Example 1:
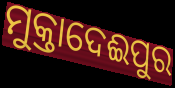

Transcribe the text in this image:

ମୁକ୍ତାଦେଈପୁର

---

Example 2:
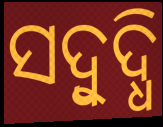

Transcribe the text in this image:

ସଦ୍ବୁଦ୍ଧି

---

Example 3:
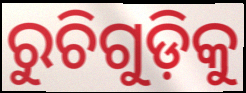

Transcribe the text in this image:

ରୁଚିଗୁଡ଼ିକୁ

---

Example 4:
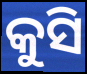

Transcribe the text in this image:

କୁସି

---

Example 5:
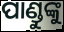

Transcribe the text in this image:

ପାଣ୍ଡୁଙ୍କୁ